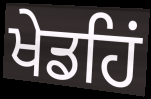
ਖੇਡਹਿਂ